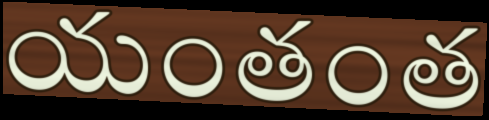
యంతంత